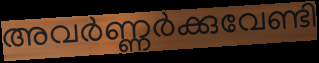
അവർണ്ണർക്കുവേണ്ടി